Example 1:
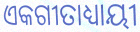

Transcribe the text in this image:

ଏକଗୀତାଧ୍ୟାୟୀ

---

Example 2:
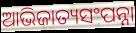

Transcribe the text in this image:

ଆଭିଜାତ୍ୟସଂପନ୍ନା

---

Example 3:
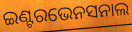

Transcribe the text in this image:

ଇଣ୍ଟରଭେନସନାଲ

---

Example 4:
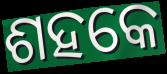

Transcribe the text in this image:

ଶହକେ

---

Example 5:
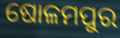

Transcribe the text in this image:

ଷୋଳମପୁର